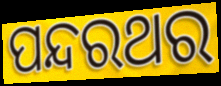
ପନ୍ଦରଥର